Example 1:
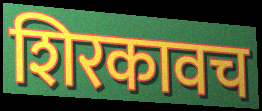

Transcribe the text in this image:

शिरकावच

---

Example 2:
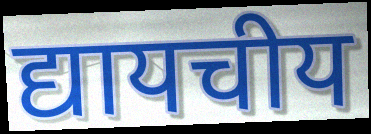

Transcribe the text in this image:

द्यायचीय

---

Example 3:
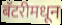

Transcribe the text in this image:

बॅटरीमधून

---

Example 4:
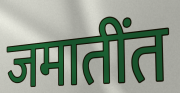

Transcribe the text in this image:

जमातींत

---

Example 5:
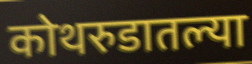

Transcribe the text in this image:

कोथरुडातल्या